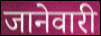
जानेवारी